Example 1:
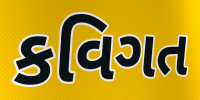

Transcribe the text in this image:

કવિગત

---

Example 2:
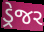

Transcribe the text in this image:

ડ્રેજર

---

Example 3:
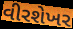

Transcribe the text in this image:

વીરશેખર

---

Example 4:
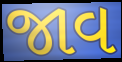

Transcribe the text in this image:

જાવ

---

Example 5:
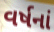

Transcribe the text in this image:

વર્ષનાં